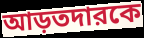
আড়তদারকে